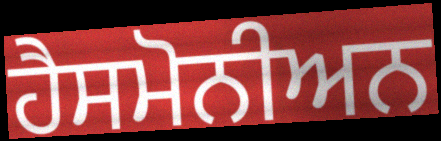
ਹੈਸਮੋਨੀਅਨ